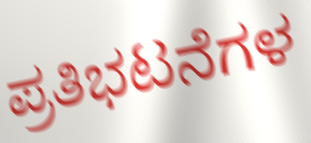
ಪ್ರತಿಭಟನೆಗಳ